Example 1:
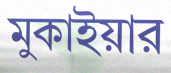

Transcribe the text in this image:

মুকাইয়ার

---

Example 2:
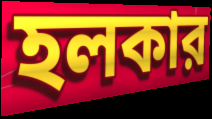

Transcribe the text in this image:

হলকার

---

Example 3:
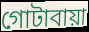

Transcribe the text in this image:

গোটাবায়া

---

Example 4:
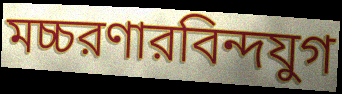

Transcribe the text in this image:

মচ্চরণারবিন্দযুগ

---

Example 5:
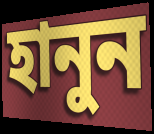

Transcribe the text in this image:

হানুন